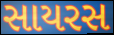
સાયરસ